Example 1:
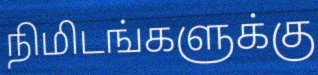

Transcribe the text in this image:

நிமிடங்களுக்கு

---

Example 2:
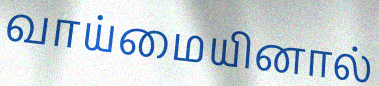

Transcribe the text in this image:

வாய்மையினால்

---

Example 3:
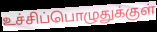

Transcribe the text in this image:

உச்சிப்பொழுதுக்குள்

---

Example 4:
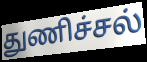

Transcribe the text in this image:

துணிச்சல்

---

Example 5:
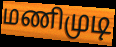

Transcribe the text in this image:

மணிமுடி